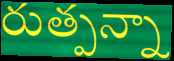
రుత్పన్నా